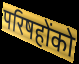
परिषहोंको